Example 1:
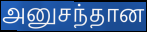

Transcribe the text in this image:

அனுசந்தான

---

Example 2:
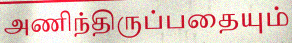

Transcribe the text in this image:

அணிந்திருப்பதையும்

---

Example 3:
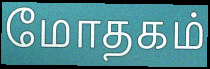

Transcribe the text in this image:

மோதகம்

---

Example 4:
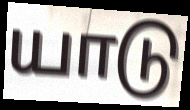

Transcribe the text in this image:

யாடு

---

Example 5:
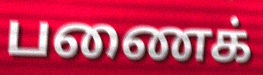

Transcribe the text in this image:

பணைக்